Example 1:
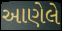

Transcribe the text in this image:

આણેલે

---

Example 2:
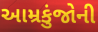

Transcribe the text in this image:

આમ્રકુંજોની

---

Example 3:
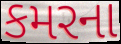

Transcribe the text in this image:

કમરના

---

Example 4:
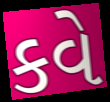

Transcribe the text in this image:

કવે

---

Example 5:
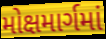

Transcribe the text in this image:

મોક્ષમાર્ગમાં